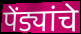
पेंड्यांचे